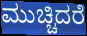
ಮುಚ್ಚಿದರೆ